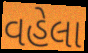
વહેલા